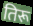
तिरू